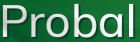
Probal